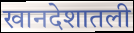
खानदेशातली